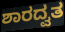
ಶಾರದ್ವತ